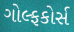
ગોલ્ફકોર્સ